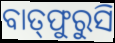
ବାତ୍‌ଫୁରୁସି